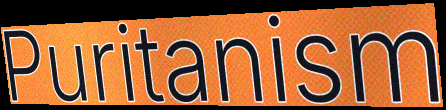
Puritanism